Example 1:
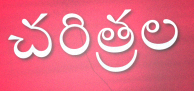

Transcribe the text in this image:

చరిత్రల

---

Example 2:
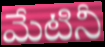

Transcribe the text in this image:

మేటినీ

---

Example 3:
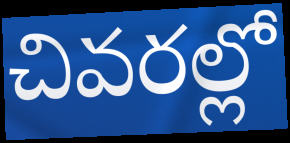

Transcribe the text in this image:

చివరల్లో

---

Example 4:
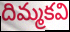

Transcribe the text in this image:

దిమ్మకవి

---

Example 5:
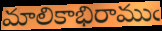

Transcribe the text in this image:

మాలికాభిరాముఁ